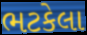
ભટકેલા